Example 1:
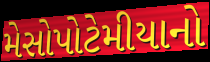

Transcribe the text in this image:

મેસોપોટેમીયાનો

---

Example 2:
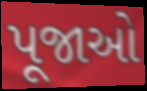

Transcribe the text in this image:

પૂજાઓ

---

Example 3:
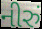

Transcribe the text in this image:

નીરું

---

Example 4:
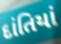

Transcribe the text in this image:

દાંતિયાં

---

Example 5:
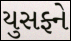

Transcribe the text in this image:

યુસફ્ને